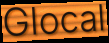
Glocal